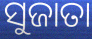
ସୁଜାତା